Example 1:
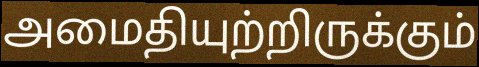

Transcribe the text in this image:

அமைதியுற்றிருக்கும்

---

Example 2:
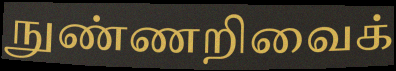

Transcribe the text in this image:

நுண்ணறிவைக்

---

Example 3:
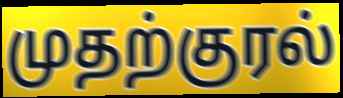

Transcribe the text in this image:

முதற்குரல்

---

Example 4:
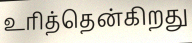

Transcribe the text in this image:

உரித்தென்கிறது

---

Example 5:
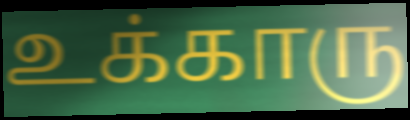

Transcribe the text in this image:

உக்காரு